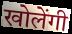
खोलेंगी